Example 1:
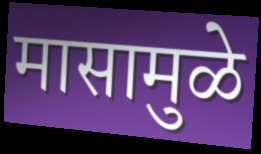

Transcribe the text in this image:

मासामुळे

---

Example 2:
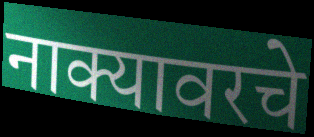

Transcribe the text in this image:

नाक्यावरचे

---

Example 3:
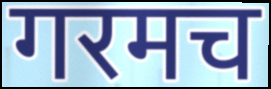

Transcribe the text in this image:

गरमच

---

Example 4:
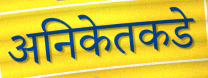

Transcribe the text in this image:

अनिकेतकडे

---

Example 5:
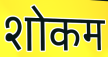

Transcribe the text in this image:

शोकम